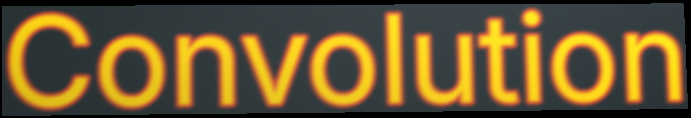
Convolution